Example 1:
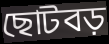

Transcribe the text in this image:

ছোটবড়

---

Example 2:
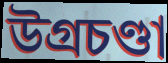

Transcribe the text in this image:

উগ্রচণ্ডা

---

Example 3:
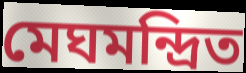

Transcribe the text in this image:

মেঘমন্দ্রিত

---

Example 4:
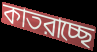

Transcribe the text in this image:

কাতরাচ্ছে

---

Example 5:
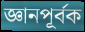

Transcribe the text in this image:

জ্ঞানপূর্বক